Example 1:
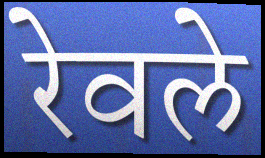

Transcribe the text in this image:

रेवले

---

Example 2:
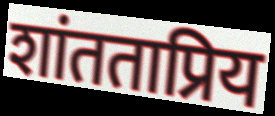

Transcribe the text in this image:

शांतताप्रिय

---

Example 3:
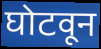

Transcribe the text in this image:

घोटवून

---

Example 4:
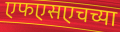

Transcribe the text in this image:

एफएसएचच्या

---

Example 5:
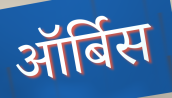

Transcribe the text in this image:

ऑर्बिस